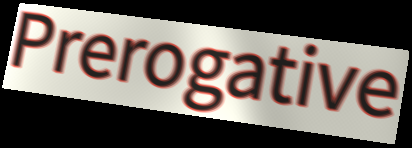
Prerogative